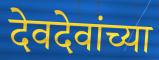
देवदेवांच्या